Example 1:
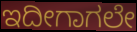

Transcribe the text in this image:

ಇದೀಗಾಗಲೇ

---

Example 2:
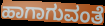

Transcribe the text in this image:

ಹಾಗಾಗುವಂತೆ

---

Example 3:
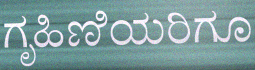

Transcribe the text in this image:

ಗೃಹಿಣಿಯರಿಗೂ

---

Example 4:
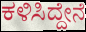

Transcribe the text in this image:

ಕಳಿಸಿದ್ದೇನೆ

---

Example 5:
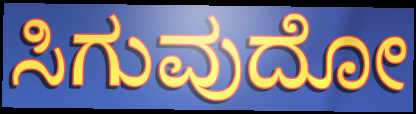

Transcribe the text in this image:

ಸಿಗುವುದೋ